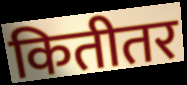
कितीतर